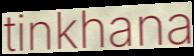
tinkhana